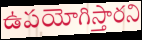
ఉపయోగిస్తారని